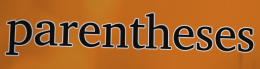
parentheses